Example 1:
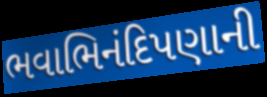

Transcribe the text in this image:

ભવાભિનંદિપણાની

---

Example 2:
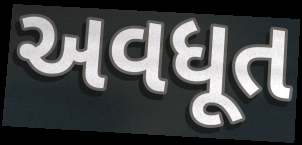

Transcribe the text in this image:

અવધૂત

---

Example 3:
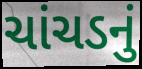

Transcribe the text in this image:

ચાંચડનું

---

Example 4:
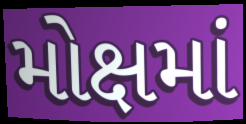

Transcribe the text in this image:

મોક્ષમાં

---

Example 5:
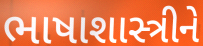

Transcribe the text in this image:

ભાષાશાસ્ત્રીને